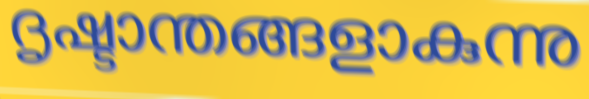
ദൃഷ്ടാന്തങ്ങളാകുന്നു